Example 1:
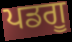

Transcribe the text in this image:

ਪਡਗੂ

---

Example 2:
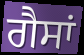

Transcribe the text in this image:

ਗੈਸਾਂ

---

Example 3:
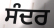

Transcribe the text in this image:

ਸੰਦਰ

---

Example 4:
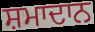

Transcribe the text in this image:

ਸ਼ਮਾਦਾਨ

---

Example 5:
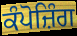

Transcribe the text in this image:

ਕੰਪੋਜ਼ਿੰਗ